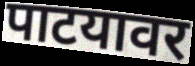
पाटयावर